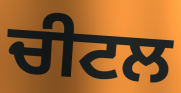
ਚੀਟਲ